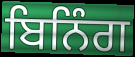
ਬਿਨਿੰਗ